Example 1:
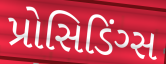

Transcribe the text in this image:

પ્રોસિડિંગ્સ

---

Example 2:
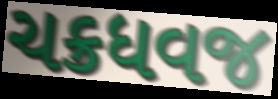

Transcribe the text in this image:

ચક્રધવજ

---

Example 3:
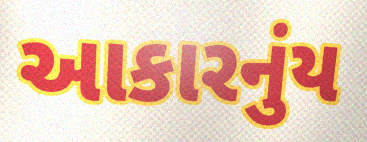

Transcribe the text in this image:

આકારનુંય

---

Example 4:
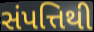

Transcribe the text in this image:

સંપત્તિથી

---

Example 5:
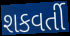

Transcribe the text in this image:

શકવર્તી